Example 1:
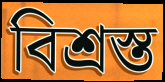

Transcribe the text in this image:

বিশ্রস্ত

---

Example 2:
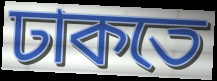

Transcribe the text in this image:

ঢাকতে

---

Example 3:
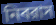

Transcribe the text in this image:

নিবরাস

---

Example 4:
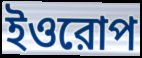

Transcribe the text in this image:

ইওরোপ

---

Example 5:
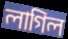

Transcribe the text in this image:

লাগিল